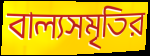
বাল্যসমৃতির